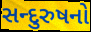
સન્દુરુષનો